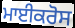
ਮਾਈਕਰੋਸ